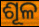
ଶୂଳ